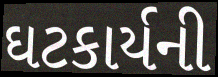
ઘટકાર્યની